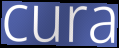
cura